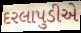
દરલાપુડીએ